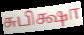
சுபிக்ஷா